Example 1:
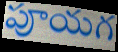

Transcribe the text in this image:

పూయగ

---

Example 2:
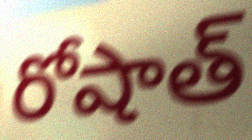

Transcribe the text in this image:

రోషాత్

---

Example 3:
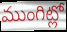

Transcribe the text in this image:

ముంగిట్లో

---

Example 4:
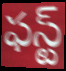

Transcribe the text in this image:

ఫస్ట్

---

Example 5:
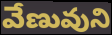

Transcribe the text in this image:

వేణువుని